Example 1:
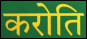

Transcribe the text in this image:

करोति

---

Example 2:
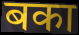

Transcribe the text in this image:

बका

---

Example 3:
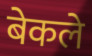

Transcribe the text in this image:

बेकले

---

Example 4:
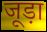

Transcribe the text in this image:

जूड़ा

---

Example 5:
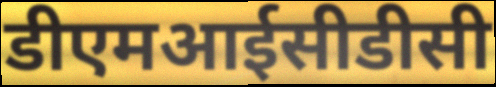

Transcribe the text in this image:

डीएमआईसीडीसी